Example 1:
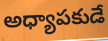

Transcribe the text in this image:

అధ్యాపకుడే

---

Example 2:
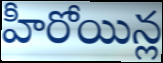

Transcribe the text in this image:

హీరోయిన్ల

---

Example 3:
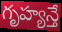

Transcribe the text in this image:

గృహ్యన్తే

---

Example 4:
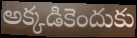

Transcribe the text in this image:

అక్కడికెందుకు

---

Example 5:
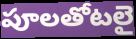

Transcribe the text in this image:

పూలతోటలై